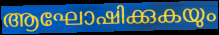
ആഘോഷിക്കുകയും